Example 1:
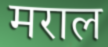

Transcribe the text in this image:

मराल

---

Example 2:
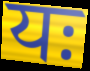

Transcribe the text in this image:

यः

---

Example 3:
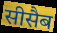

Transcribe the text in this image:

सीसैब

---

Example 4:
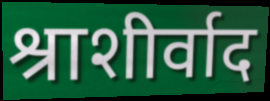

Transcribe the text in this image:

श्राशीर्वाद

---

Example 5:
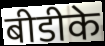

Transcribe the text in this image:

बीडीके